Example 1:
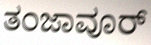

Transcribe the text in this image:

ತಂಜಾವೂರ್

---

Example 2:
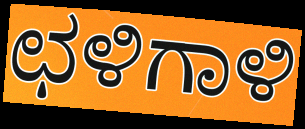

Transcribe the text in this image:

ಛಳಿಗಾಳಿ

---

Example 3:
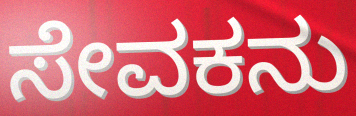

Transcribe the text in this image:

ಸೇವಕನು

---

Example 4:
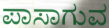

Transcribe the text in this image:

ಪಾಸಾಗುವ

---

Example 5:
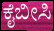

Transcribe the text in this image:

ಕೈಬೀಸಿ